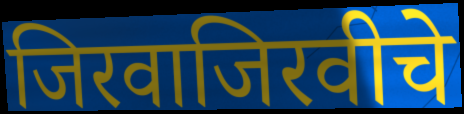
जिरवाजिरवीचे